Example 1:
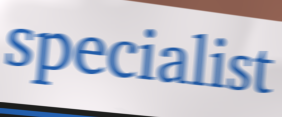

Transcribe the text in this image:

specialist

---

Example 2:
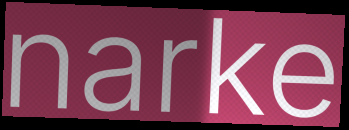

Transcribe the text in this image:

narke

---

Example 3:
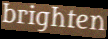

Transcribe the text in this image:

brighten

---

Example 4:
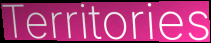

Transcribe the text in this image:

Territories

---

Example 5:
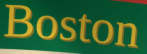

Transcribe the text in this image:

Boston